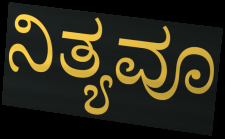
ನಿತ್ಯವೂ